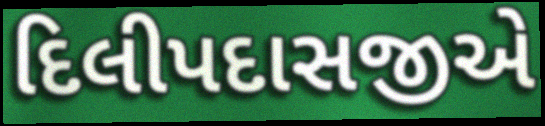
દિલીપદાસજીએ